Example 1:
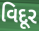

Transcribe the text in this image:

વિદૂર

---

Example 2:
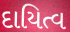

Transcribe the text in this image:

દાયિત્વ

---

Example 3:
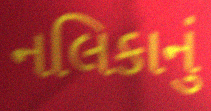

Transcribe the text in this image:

નલિકાનું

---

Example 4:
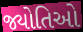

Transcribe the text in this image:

જ્યોતિઓ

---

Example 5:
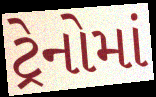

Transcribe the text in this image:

ટ્રેનોમાં